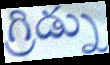
గ్రిడ్ను